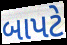
બાપટે